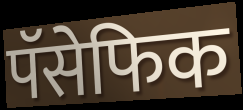
पॅसेफिक